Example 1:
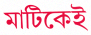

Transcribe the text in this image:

মাটিকেই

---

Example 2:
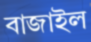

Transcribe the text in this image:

বাজাইল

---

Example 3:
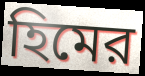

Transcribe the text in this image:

হিমের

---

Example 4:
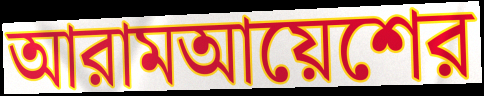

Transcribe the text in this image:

আরামআয়েশের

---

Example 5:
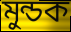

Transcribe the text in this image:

মুন্ডক